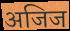
अजिज